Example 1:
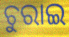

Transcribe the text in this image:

ଚୁରାଇ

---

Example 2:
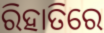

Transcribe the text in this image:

ରିହାତିରେ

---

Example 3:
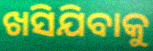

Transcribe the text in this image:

ଖସିଯିବାକୁ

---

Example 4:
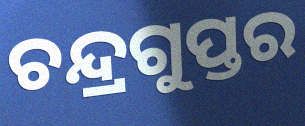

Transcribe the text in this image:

ଚନ୍ଦ୍ରଗୁପ୍ତର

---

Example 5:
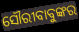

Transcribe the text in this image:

ସୌରୀବାବୁଙ୍କର